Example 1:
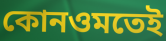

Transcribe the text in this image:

কোনওমতেই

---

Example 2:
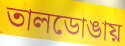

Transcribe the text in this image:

তালডোঙায়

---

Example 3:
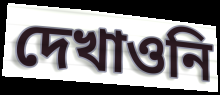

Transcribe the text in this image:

দেখাওনি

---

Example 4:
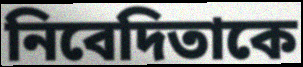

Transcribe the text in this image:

নিবেদিতাকে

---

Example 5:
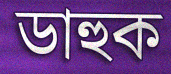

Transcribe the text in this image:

ডাহুক